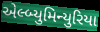
એલ્બ્યુમિન્યુરિયા